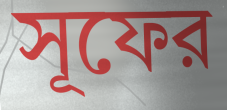
সূফের